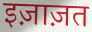
इज़ाज़त